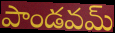
పాండవమ్